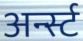
अर्न्स्ट